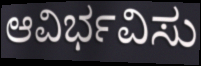
ಆವಿರ್ಭವಿಸು